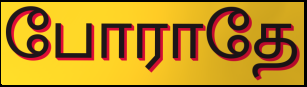
போராதே